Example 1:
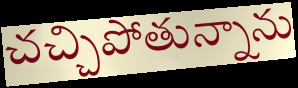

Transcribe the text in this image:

చచ్చిపోతున్నాను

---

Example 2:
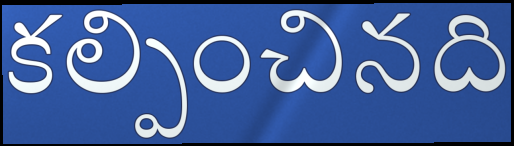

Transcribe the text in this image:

కల్పించినది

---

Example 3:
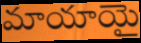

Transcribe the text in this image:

మాయాయై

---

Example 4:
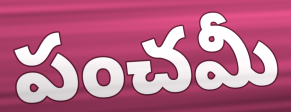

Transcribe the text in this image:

పంచమీ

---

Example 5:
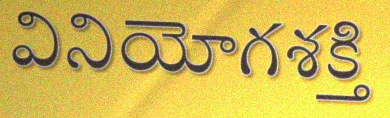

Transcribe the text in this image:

వినియోగశక్తి